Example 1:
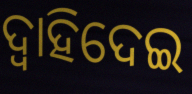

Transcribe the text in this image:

ଦ୍ୱାହିଦେଇ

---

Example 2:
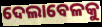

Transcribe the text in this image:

ଦେଲାବେଳକୁ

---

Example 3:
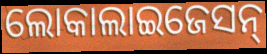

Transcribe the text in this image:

ଲୋକାଲାଇଜେସନ୍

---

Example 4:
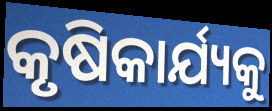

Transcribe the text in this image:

କୃଷିକାର୍ଯ୍ୟକୁ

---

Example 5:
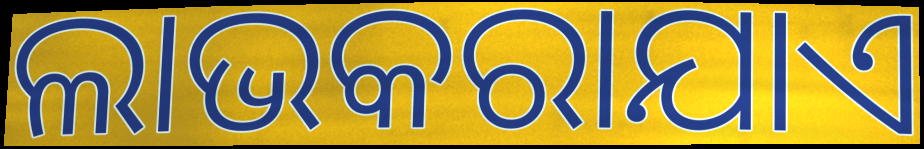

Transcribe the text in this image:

ଲାଭକରାଯାଏ